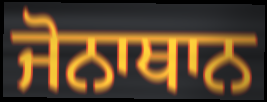
ਜੋਨਾਥਾਨ